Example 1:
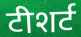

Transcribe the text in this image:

टीशर्ट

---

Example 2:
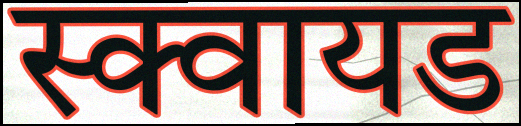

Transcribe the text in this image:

स्क्वायड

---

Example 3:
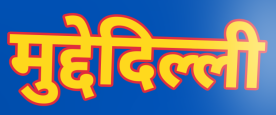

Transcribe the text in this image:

मुद्देदिल्ली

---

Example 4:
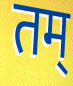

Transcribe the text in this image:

तम्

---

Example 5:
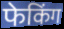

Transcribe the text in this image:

फेकिंग